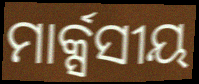
ମାର୍କ୍ସସୀୟ